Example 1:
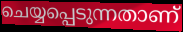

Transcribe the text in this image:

ചെയ്യപ്പെടുന്നതാണ്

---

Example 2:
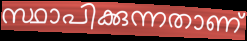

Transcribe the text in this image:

സ്ഥാപിക്കുന്നതാണ്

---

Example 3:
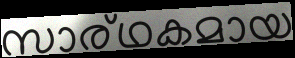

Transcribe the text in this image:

സാര്ഥകമായ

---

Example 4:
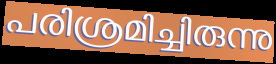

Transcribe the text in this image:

പരിശ്രമിച്ചിരുന്നു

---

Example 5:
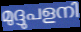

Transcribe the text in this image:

മുദ്ദുപളനി